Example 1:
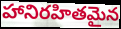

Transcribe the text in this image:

హానిరహితమైన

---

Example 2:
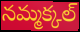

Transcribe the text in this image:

నమ్మక్కల్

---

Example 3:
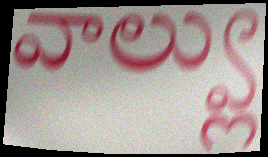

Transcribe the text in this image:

వాల్వ్లు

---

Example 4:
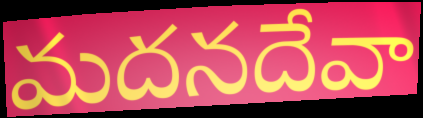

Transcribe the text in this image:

మదనదేవా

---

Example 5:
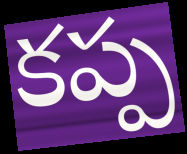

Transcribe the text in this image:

కప్ప